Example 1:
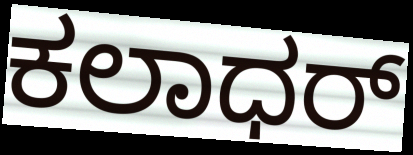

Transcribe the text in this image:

ಕಲಾಧರ್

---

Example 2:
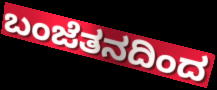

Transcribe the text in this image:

ಬಂಜೆತನದಿಂದ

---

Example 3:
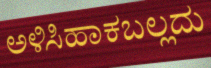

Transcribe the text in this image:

ಅಳಿಸಿಹಾಕಬಲ್ಲದು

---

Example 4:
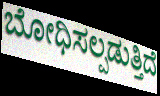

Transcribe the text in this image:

ಬೋಧಿಸಲ್ಪಡುತ್ತಿದೆ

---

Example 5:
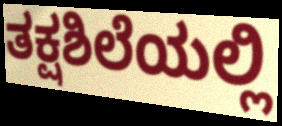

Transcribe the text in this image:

ತಕ್ಷಶಿಲೆಯಲ್ಲಿ